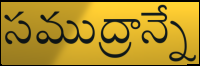
సముద్రాన్నే